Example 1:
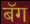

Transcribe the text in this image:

बॅग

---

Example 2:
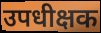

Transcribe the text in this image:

उपधीक्षक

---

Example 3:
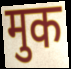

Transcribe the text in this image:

मुक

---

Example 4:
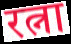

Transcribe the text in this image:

रत्ना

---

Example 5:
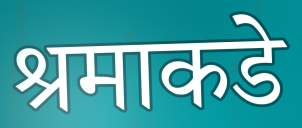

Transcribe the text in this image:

श्रमाकडे